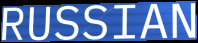
RUSSIAN